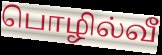
பொழில்வீ